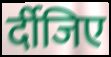
र्दीजिए